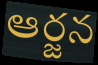
ఆర్జన